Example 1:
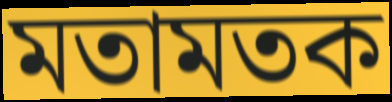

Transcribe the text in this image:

মতামতক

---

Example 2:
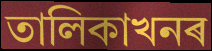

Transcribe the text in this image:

তালিকাখনৰ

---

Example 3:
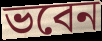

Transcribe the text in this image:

ভবেন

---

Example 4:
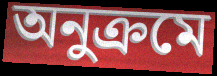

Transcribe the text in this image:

অনুক্ৰমে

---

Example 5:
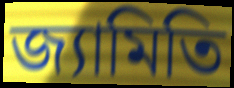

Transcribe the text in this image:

জ্যামিতি